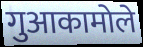
गुआकामोले